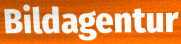
Bildagentur